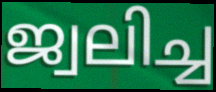
ജ്വലിച്ച